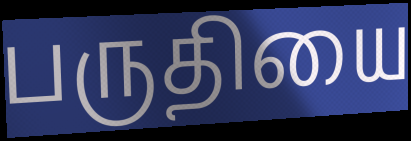
பருதியை